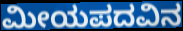
ಮೀಯಪದವಿನ